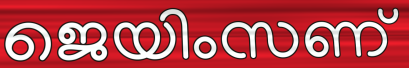
ജെയിംസണ്